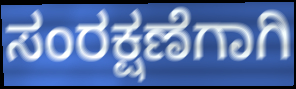
ಸಂರಕ್ಷಣೆಗಾಗಿ